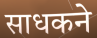
साधकने